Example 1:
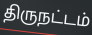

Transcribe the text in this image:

திருநட்டம்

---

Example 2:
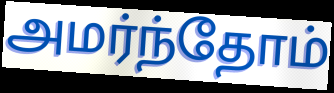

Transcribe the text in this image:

அமர்ந்தோம்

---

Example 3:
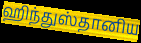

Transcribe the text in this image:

ஹிந்துஸ்தானிய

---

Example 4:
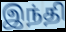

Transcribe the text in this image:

இந்தி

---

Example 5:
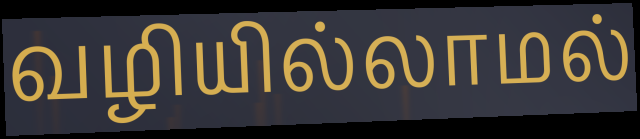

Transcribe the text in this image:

வழியில்லாமல்